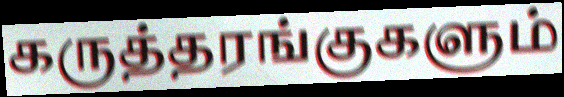
கருத்தரங்குகளும்